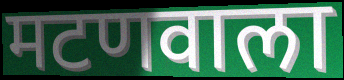
मटणवाला